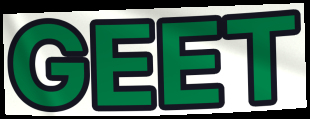
GEET